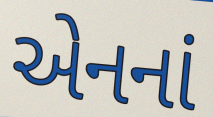
એનનાં